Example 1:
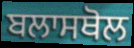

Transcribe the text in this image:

ਬਲਾਸਥੋਲ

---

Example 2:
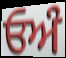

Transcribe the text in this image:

ਓਅੰ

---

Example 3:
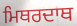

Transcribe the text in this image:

ਮਿਥਰਦਾਥ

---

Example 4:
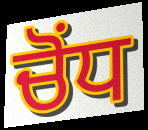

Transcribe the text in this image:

ਚੋਂਧ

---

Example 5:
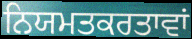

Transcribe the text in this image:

ਨਿਯਮਤਕਰਤਾਵਾਂ